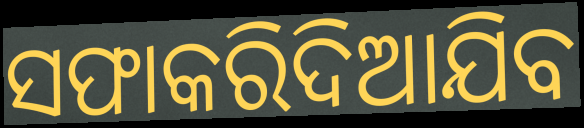
ସଫାକରିଦିଆଯିବ